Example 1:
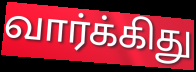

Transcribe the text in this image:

வார்க்கிது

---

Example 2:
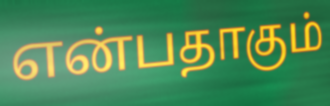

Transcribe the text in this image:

என்பதாகும்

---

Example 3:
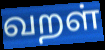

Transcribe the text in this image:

வறள்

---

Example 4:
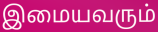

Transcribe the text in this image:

இமையவரும்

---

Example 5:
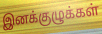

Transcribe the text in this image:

இனக்குழுக்கள்